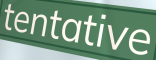
tentative